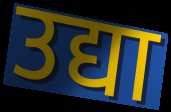
उद्या